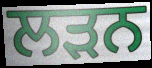
ਲੜਨ